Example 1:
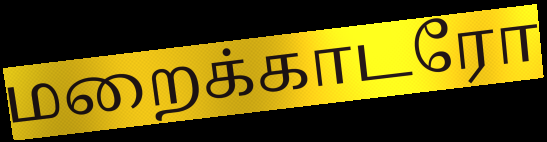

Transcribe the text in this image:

மறைக்காடரோ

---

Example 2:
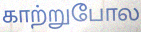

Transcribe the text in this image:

காற்றுபோல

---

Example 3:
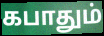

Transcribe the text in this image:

கபாதும்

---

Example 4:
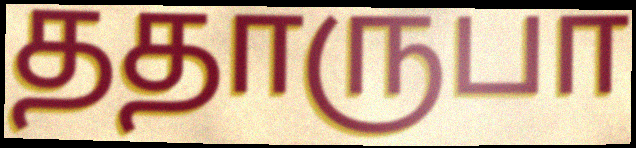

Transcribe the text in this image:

ததாருபா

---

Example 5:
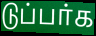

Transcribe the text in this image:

டுப்பர்க